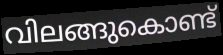
വിലങ്ങുകൊണ്ട്